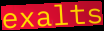
exalts